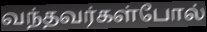
வந்தவர்கள்போல்